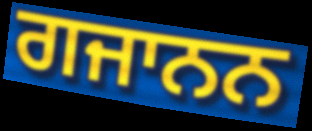
ਗਜਾਨਨ